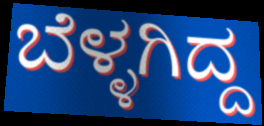
ಬೆಳ್ಳಗಿದ್ದ